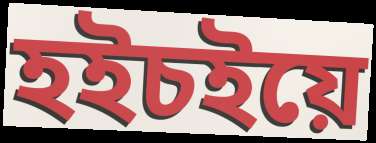
হইচইয়ে